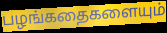
பழங்கதைகளையும்